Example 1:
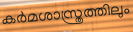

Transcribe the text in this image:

കർമശാസ്ത്രത്തിലും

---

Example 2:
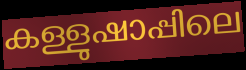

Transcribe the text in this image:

കള്ളുഷാപ്പിലെ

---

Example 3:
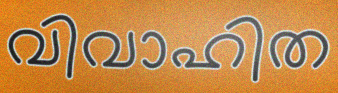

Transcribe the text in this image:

വിവാഹിത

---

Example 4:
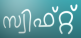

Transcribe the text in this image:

സ്വിഫ്റ്റ്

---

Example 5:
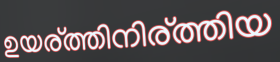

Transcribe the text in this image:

ഉയര്ത്തിനിര്ത്തിയ